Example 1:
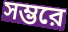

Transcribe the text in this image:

সম্ভরে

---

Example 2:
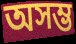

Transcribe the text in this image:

অসম্ভ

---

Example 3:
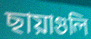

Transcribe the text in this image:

ছায়াগুলি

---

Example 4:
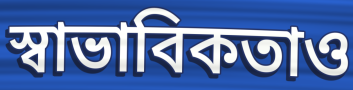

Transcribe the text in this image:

স্বাভাবিকতাও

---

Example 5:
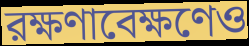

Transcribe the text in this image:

রক্ষণাবেক্ষণেও